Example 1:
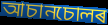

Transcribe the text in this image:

আচানচোলৰ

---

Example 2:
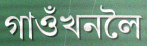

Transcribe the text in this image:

গাওঁখনলৈ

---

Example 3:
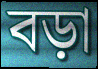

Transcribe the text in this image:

বড়া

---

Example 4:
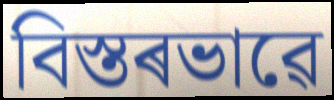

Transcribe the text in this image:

বিস্তৰভাৱে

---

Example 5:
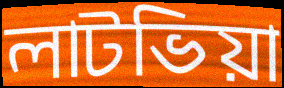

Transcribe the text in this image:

লাটভিয়া